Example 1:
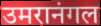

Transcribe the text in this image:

उमरानंगल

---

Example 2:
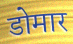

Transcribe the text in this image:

डोमार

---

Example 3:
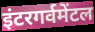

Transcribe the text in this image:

इंटरगर्वमेंटल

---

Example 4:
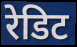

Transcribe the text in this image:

रेडिट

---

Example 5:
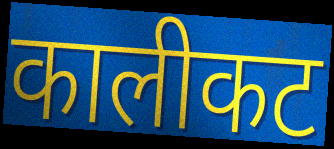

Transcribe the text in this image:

कालीकट